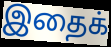
இதைக்